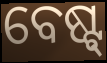
ବେଷ୍ଟ୍